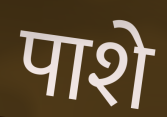
पाशे